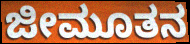
ಜೀಮೂತನ